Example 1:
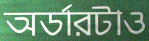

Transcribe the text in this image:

অর্ডারটাও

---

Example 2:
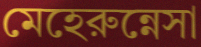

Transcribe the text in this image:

মেহেরুন্নেসা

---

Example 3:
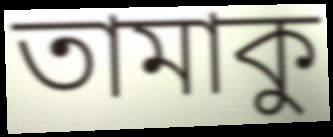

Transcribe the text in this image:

তামাকু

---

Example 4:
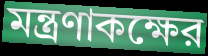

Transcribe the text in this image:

মন্ত্রণাকক্ষের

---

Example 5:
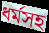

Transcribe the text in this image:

ধর্মসহ